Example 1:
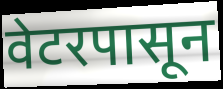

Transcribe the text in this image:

वेटरपासून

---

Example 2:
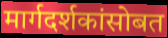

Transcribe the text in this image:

मार्गदर्शकांसोबत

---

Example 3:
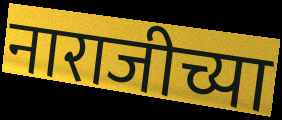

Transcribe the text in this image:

नाराजीच्या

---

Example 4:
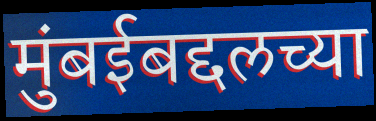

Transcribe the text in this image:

मुंबईबद्दलच्या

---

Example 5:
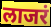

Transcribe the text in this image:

लाजरं